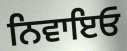
ਨਿਵਾਇਓ